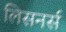
लिसनर्स